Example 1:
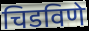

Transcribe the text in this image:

चिडविणे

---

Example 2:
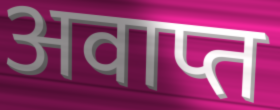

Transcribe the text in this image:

अवाप्त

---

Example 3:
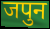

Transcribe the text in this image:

जपुन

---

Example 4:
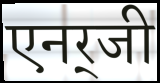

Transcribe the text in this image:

एनर्जी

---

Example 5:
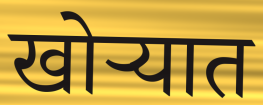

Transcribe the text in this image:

खोर्‍यात